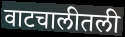
वाटचालीतली